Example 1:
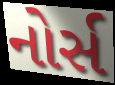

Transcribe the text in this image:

નોર્સ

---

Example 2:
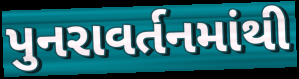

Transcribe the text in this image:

પુનરાવર્તનમાંથી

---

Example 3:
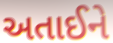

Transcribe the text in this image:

અતાઈને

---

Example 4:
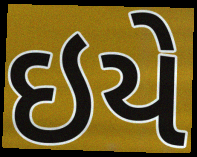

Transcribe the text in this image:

ઇયે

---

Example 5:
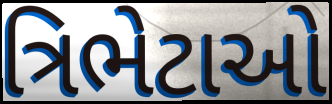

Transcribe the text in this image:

ત્રિભેટાઓ